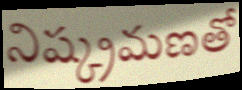
నిష్క్రమణతో